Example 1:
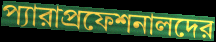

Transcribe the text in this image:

প্যারাপ্রফেশনালদের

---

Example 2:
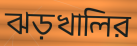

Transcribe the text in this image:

ঝড়খালির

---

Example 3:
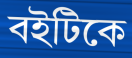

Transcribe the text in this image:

বইটিকে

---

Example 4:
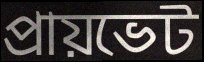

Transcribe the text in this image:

প্রায়ভেট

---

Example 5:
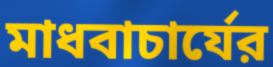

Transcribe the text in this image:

মাধবাচার্যের